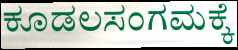
ಕೂಡಲಸಂಗಮಕ್ಕೆ